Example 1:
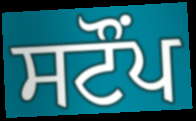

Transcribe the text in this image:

ਸਟੌਂਪ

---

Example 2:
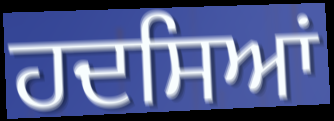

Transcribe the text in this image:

ਹਦਸਿਆਂ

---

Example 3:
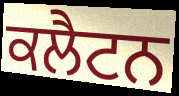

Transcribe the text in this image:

ਕਲੈਟਨ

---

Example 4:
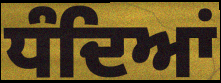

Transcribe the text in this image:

ਧੰਦਿਆਂ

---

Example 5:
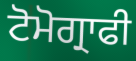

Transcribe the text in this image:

ਟੋਮੋਗ੍ਰਾਫੀ